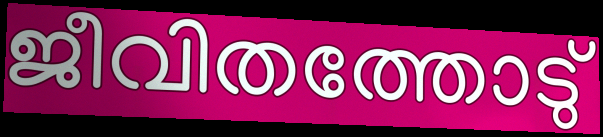
ജീവിതത്തോടു്